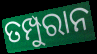
ତମ୍ପୁରାନ